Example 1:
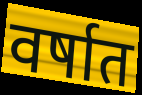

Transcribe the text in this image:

वर्षात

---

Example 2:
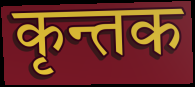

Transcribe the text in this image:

कृन्तक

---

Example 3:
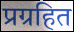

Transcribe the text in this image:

प्रग्रहित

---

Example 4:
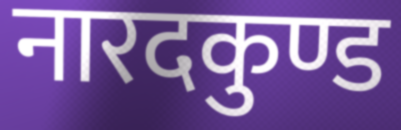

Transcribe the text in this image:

नारदकुण्ड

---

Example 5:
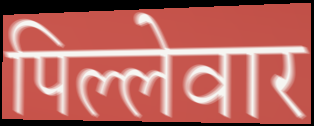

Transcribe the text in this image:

पिल्लेवार